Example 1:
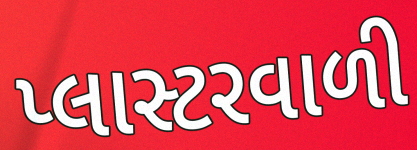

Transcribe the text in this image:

પ્લાસ્ટરવાળી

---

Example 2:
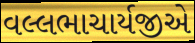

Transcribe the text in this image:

વલ્લભાચાર્યજીએ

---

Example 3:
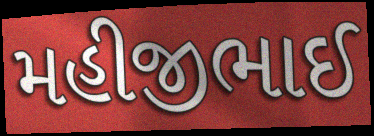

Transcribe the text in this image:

મહીજીભાઈ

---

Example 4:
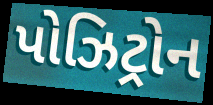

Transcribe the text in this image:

પોઝિટ્રોન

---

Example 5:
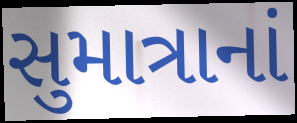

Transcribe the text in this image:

સુમાત્રાનાં